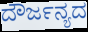
ದೌರ್ಜನ್ಯದ